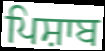
ਪਿਸ਼ਾਬ